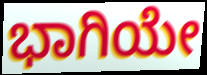
ಭಾಗಿಯೇ